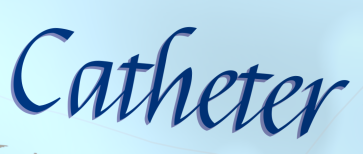
Catheter